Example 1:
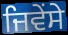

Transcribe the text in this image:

ਜਿਵੇਂਸੇ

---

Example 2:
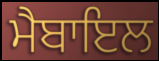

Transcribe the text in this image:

ਮੈਬਾਇਲ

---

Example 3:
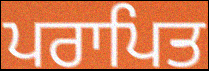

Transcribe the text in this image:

ਪਰਾਪਿਤ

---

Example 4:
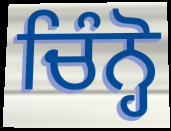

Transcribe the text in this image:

ਚਿੰਨ੍ਹੋ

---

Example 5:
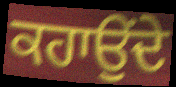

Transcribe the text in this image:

ਕਹਾਉਂਦੇ